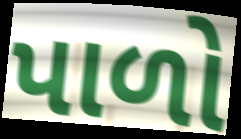
પાળો